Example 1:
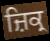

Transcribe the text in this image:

ਜ਼ਿਕ੍ਰ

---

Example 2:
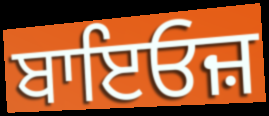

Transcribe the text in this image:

ਬਾਇਓਜ਼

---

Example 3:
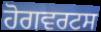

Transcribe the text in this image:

ਹੋਗਵਰਟਸ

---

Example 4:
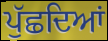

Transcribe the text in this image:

ਪੁੱਛਦਿਆਂ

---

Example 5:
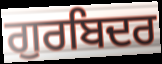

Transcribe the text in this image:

ਗੁਰਬਿਦਰ